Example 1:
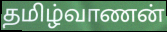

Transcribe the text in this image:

தமிழ்வாணன்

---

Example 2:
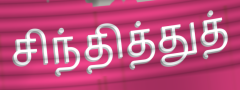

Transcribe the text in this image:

சிந்தித்துத்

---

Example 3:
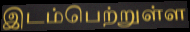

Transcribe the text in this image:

இடம்பெற்றுள்ள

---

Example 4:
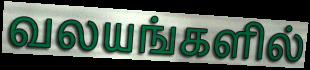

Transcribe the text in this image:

வலயங்களில்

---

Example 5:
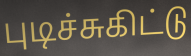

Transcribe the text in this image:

புடிச்சுகிட்டு